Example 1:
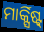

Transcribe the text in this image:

ମାର୍କ୍ସିଷ୍ଟ୍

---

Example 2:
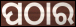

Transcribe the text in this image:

ପଠାର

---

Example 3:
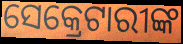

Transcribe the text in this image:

ସେକ୍ରେଟାରୀଙ୍କ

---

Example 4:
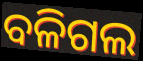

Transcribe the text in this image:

ବଳିଗଲ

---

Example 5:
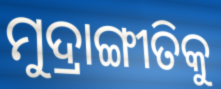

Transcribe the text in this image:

ମୁଦ୍ରାଙ୍ଗୀତିକୁ